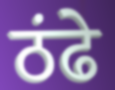
ठंढे